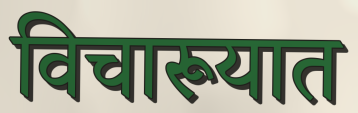
विचारूयात